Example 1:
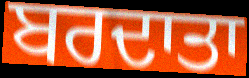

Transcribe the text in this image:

ਬਰਦਾਤਾ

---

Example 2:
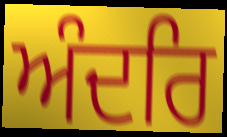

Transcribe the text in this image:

ਅੰਦਰਿ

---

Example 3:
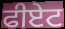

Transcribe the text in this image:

ਫੀਏਟ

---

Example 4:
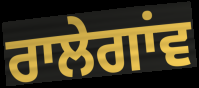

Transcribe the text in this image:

ਰਾਲੇਗਾਂਵ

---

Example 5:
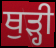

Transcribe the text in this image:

ਥੁੜ੍ਹੀ